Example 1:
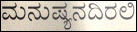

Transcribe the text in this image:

ಮನುಷ್ಯನದಿರಲಿ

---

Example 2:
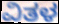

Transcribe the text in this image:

ವಿತಳ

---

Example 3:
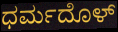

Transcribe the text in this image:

ಧರ್ಮದೊಳ್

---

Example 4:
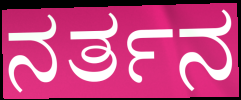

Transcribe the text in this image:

ನರ್ತನ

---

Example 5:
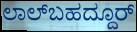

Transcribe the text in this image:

ಲಾಲ್‌ಬಹದ್ದೂರ್